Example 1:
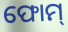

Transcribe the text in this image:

ଫୋମ୍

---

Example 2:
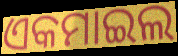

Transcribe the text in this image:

ଏକମାଇଲ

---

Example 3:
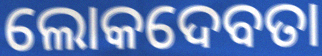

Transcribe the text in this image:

ଲୋକଦେବତା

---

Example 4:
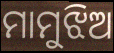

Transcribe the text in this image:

ମାମୁଝିଅ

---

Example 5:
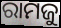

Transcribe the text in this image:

ରାମଜୁ